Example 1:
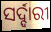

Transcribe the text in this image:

ସର୍ଦ୍ଦାରୀ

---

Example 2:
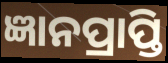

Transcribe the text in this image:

ଜ୍ଞାନପ୍ରାପ୍ତି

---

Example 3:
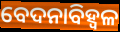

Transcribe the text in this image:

ବେଦନାବିହ୍ୱଳ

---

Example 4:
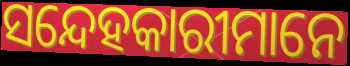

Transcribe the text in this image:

ସନ୍ଦେହକାରୀମାନେ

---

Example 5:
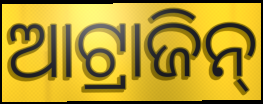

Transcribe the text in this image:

ଆଟ୍ରାଜିନ୍